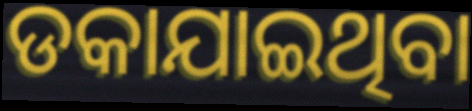
ଡକାଯାଇଥିବା